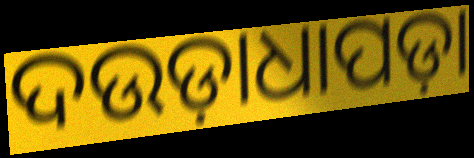
ଦଉଡ଼ାଧାପଡ଼ା